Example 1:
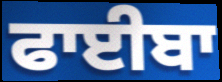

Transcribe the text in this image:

ਫਾਈਬਾ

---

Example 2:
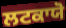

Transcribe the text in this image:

ਲਟਕਾਯੋ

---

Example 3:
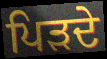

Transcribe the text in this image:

ਪਿੜਦੇ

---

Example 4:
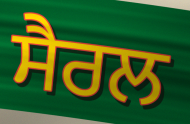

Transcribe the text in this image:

ਸੈਰਲ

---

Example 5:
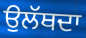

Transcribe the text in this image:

ਉਲੱਥਦਾ